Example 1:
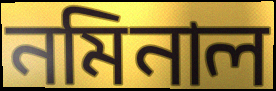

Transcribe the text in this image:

নমিনাল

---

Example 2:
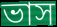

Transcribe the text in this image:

ভাস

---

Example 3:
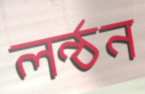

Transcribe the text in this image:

লন্ঠন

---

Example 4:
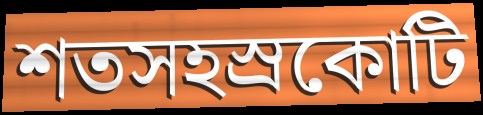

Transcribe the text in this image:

শতসহস্রকোটি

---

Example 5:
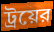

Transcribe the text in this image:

ট্রয়ের